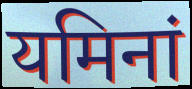
यमिनां